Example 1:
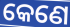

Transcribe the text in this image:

କେଣେ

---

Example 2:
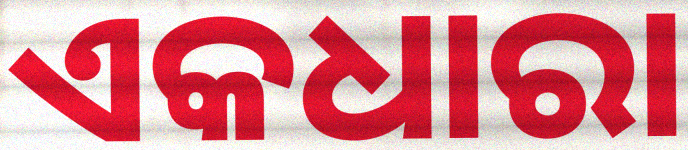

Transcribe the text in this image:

ଏକଧାରା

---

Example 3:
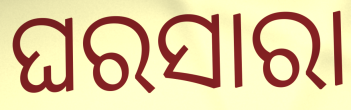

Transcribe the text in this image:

ଘରସାରା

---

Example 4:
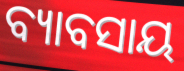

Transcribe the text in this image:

ବ୍ୟାବସାୟ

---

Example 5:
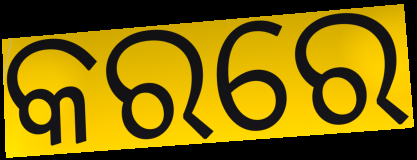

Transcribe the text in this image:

କରରେ